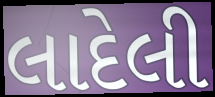
લાદેલી